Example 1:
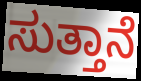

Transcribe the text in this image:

ಸುತ್ತಾನೆ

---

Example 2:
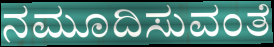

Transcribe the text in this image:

ನಮೂದಿಸುವಂತೆ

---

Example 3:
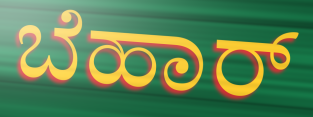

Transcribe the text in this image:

ಬೆಹಾರ್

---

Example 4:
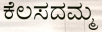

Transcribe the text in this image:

ಕೆಲಸದಮ್ಮ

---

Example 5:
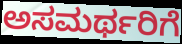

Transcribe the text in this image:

ಅಸಮರ್ಥರಿಗೆ